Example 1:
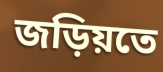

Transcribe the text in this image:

জড়িয়তে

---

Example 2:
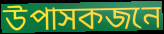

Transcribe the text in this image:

উপাসকজনে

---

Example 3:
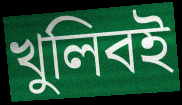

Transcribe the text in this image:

খুলিবই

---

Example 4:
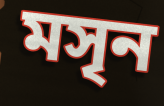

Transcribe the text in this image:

মসৃন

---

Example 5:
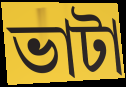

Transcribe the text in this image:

ভাটা